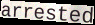
arrested